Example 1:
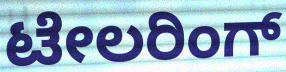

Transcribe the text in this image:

ಟೇಲರಿಂಗ್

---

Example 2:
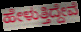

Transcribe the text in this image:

ಹೇಳುತ್ತಿದ್ದೇವೆ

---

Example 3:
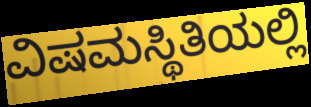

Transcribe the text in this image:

ವಿಷಮಸ್ಥಿತಿಯಲ್ಲಿ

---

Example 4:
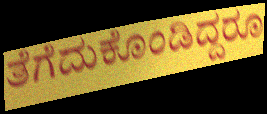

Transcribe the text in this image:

ತೆಗೆದುಕೊಂಡಿದ್ದರೂ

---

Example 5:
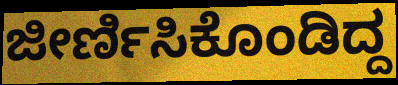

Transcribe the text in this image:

ಜೀರ್ಣಿಸಿಕೊಂಡಿದ್ದ